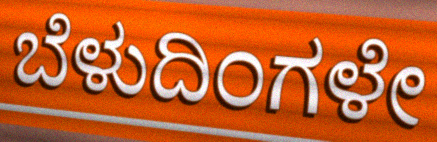
ಬೆಳುದಿಂಗಳೇ